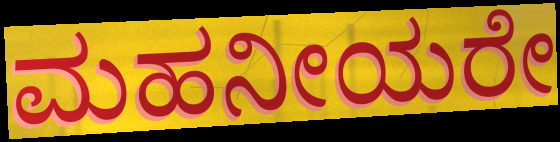
ಮಹನೀಯರೇ